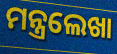
ମନ୍ତ୍ରଲେଖା